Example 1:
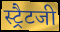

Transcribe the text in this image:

स्ट्रैटजी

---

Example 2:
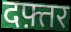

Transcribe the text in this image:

दफ़्तर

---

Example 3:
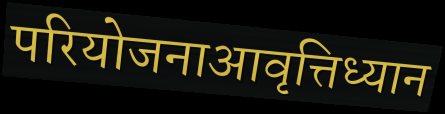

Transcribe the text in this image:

परियोजनाआवृत्तिध्यान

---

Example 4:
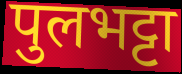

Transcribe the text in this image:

पुलभट्टा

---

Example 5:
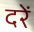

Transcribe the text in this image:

दरें